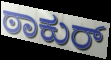
ಠಾಕುರ್